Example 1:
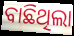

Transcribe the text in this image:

ବାଛିଥିଲା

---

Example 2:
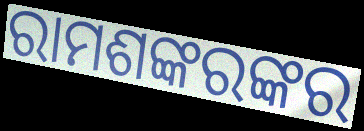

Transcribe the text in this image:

ରାମଶଙ୍କରଙ୍କର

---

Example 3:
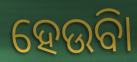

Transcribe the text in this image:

ହେଉିବା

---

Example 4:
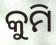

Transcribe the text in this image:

କୁମି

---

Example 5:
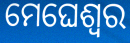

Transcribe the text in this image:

ମେଘେଶ୍ୱର